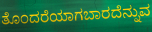
ತೊಂದರೆಯಾಗಬಾರದೆನ್ನುವ